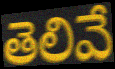
తెలివే